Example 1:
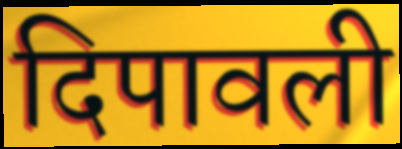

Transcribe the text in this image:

दिपावली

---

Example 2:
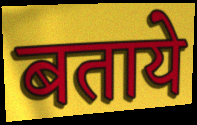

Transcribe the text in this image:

बताये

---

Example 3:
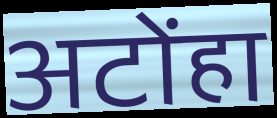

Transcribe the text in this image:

अटोंहा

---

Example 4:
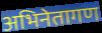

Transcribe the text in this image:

अभिनेतागण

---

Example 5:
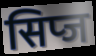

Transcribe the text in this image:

सिप्ज